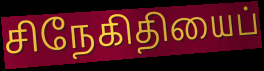
சிநேகிதியைப்